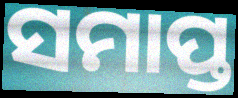
ସମାପ୍ତ